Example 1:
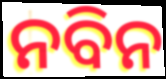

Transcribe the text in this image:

ନବିନ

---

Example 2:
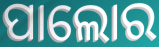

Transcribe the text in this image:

ପାଲୋର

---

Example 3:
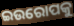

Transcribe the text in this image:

ଇଉରୋପକୁ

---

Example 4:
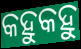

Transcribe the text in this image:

କହୁକହୁ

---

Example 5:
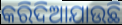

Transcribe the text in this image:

କରିଦିଆଯାଉଛି